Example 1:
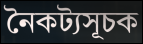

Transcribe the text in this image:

নৈকট্যসূচক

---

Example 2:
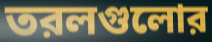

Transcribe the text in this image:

তরলগুলোর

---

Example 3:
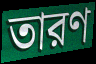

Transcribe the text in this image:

তারণ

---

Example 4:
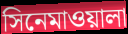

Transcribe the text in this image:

সিনেমাওয়ালা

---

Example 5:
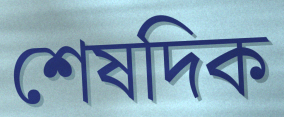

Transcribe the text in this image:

শেষদিক